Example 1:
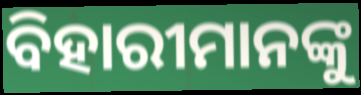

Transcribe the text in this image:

ବିହାରୀମାନଙ୍କୁ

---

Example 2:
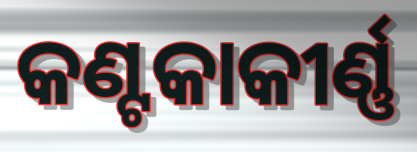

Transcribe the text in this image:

କଣ୍ଟକାକୀର୍ଣ୍ଣ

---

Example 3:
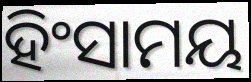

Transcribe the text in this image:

ହିଂସାମୟ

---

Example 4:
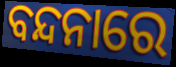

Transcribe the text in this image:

ବନ୍ଦନାରେ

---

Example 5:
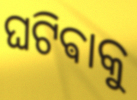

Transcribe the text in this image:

ଘଟିଵାକୁ